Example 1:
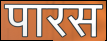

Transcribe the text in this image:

पारस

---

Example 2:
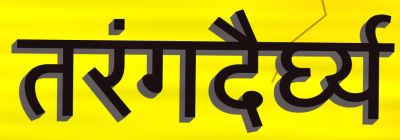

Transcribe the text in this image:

तरंगदैर्घ्य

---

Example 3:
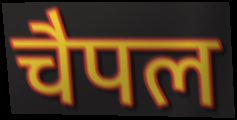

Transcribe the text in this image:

चैपल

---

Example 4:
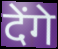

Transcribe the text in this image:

देंगे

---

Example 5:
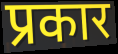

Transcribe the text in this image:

प्रकार